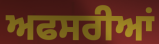
ਅਫਸਰੀਆਂ